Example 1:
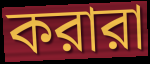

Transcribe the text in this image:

করারা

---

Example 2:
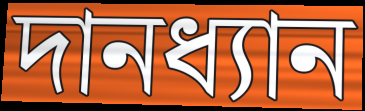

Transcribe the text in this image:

দানধ্যান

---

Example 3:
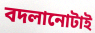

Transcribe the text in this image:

বদলানোটাই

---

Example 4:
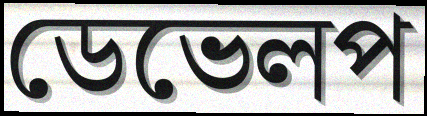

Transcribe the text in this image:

ডেভেলপ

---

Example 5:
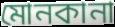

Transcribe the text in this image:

মোনকানা